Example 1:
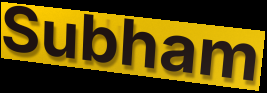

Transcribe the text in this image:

Subham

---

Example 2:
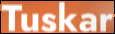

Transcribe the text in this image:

Tuskar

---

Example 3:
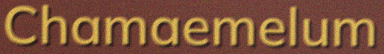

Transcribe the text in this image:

Chamaemelum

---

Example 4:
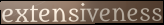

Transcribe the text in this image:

extensiveness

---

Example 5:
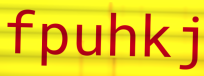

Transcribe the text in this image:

fpuhkj